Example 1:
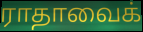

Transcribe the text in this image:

ராதாவைக்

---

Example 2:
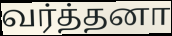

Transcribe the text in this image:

வர்த்தனா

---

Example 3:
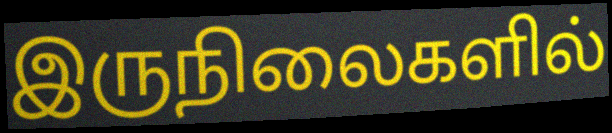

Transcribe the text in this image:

இருநிலைகளில்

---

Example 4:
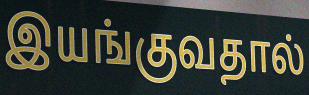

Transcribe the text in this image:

இயங்குவதால்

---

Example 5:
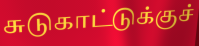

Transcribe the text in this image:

சுடுகாட்டுக்குச்